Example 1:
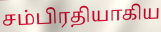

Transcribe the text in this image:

சம்பிரதியாகிய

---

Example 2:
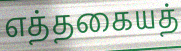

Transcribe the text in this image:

எத்தகையத்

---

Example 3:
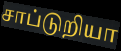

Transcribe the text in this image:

சாப்டுறியா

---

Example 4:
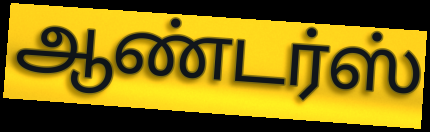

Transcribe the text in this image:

ஆண்டர்ஸ்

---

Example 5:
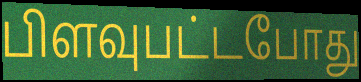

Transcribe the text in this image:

பிளவுபட்டபோது